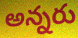
అన్నరు